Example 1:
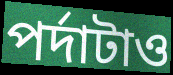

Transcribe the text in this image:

পর্দাটাও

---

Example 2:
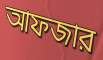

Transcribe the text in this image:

আফজার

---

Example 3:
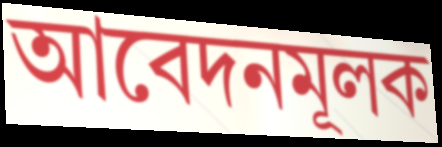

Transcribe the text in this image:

আবেদনমূলক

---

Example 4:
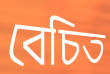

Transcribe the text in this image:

বেচিত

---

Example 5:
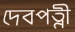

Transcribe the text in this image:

দেবপত্নী